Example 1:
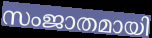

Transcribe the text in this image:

സംജാതമായി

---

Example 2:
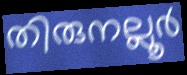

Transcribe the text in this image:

തിരുനല്ലൂർ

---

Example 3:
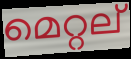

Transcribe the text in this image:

മെറ്റല്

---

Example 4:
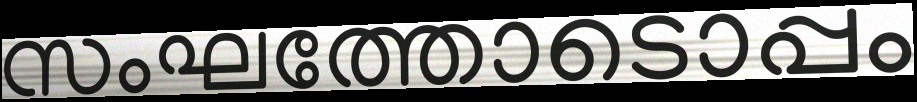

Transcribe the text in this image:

സംഘത്തോടൊപ്പം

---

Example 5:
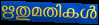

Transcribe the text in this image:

ഋതുമതികൾ